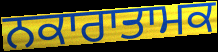
ਨਕਾਰਾਤਾਮਕ